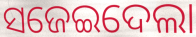
ସଜେଇଦେଲା